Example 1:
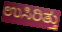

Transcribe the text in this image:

ಉಸಿರಿತ್ತು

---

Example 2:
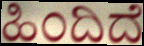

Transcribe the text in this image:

ಹಿಂದಿದೆ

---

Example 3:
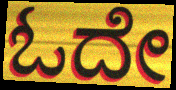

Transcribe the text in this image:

ಓದೇ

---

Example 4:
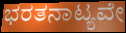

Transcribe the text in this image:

ಭರತನಾಟ್ಯವೇ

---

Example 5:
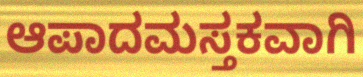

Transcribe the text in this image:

ಆಪಾದಮಸ್ತಕವಾಗಿ